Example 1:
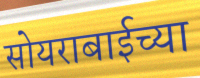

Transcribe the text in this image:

सोयराबाईच्या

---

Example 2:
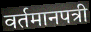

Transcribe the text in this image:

वर्तमानपत्री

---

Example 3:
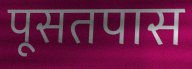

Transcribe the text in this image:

पूसतपास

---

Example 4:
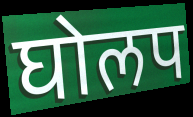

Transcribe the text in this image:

घोलप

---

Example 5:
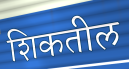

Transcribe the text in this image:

शिकतील